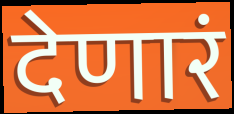
देणारं